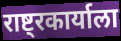
राष्ट्रकार्याला